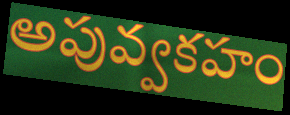
అపువ్వకహం